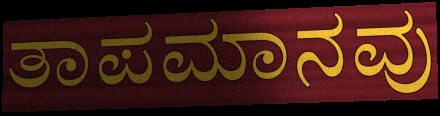
ತಾಪಮಾನವು